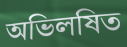
অভিলষিত